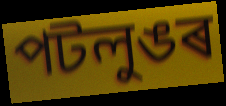
পটলুঙৰ